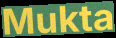
Mukta